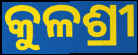
କୁଳଶ୍ରୀ